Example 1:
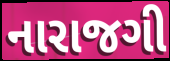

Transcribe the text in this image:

નારાજગી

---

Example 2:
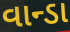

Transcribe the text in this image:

વાન્ડા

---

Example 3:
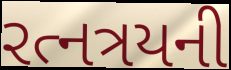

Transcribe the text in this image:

રત્નત્રયની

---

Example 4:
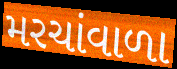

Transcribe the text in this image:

મરચાંવાળા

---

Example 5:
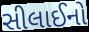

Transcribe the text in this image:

સીલાઈનો